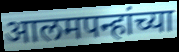
आलमपन्हांच्या